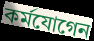
কর্মযোগেন